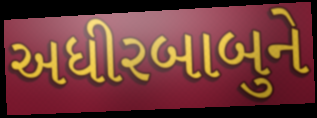
અધીરબાબુને